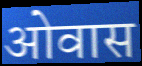
ओवास